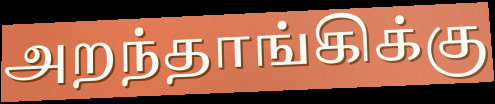
அறந்தாங்கிக்கு